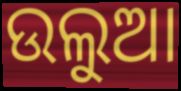
ଉଲୁଆ